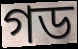
গড